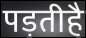
पड़तीहै